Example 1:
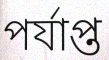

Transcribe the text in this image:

পর্যাপ্ত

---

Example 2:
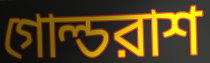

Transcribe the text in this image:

গোল্ডরাশ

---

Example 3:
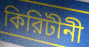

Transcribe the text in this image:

কিরিটীনী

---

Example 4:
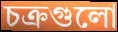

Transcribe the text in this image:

চক্রগুলো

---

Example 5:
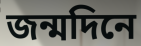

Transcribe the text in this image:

জন্মদিনে